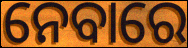
ନେବାରେ